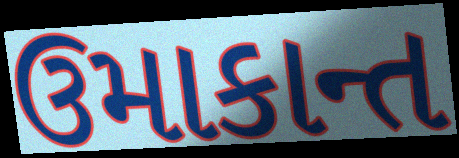
ઉમાકાન્ત